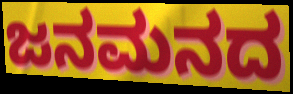
ಜನಮನದ